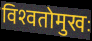
विश्वतोमुखः